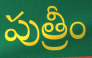
పుత్రీం